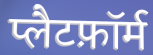
प्लैटफ़ॉर्म